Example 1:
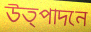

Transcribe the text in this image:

উত্পাদনে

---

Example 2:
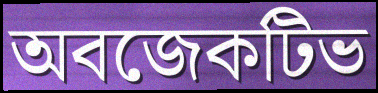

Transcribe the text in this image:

অবজেকটিভ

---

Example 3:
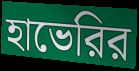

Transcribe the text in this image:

হাভেরির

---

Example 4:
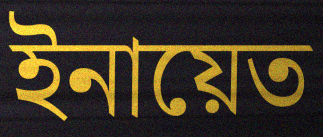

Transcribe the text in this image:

ইনায়েত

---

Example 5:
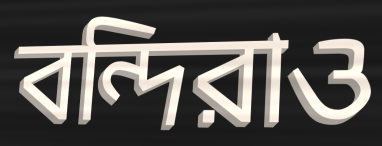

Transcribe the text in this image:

বন্দিরাও